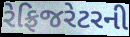
રેફ્રિજરેટરની